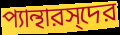
প্যান্থারস্‌দের